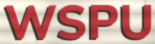
WSPU